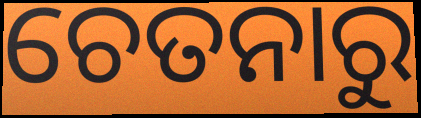
ଚେତନାରୁ